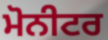
ਮੋਨੀਟਰ